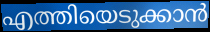
എത്തിയെടുക്കാൻ